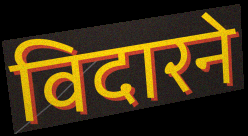
विदारने